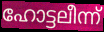
ഹോട്ടലീന്ന്